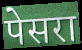
पेसरा